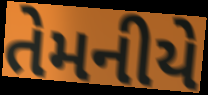
તેમનીયે